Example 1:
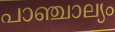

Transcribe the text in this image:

പാഞ്ചാല്യം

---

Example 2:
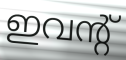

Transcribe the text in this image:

ഇവന്റ്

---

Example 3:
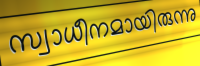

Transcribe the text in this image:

സ്വാധീനമായിരുന്നു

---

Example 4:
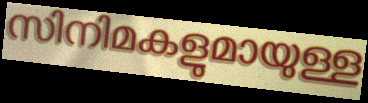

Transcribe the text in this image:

സിനിമകളുമായുള്ള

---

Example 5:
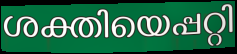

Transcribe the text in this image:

ശക്തിയെപ്പറ്റി